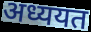
अध्ययत